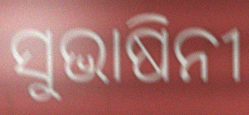
ସୁଭାଷିନୀ